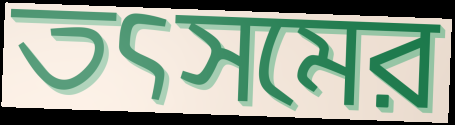
তৎসমের